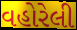
વહોરેલી